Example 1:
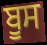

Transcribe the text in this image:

ਬੂਸ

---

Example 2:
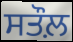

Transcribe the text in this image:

ਸਤੌਲ਼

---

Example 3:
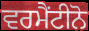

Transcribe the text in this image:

ਵਰਮੈਂਟੀਨੋ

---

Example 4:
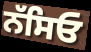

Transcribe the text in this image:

ਨੱਸਿਓ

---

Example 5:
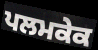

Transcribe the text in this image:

ਪਲਮਕੇਕ